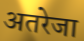
अतरेजा